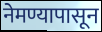
नेमण्यापासून